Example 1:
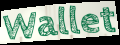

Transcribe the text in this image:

Wallet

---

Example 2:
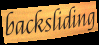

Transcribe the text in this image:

backsliding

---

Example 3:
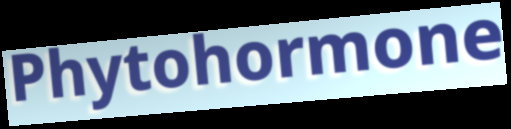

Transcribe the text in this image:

Phytohormone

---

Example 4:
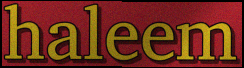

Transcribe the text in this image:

haleem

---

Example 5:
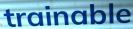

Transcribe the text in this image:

trainable